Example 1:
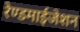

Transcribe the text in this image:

रेण्डमाईजेशन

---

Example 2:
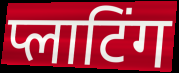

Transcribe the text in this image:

प्लाटिंग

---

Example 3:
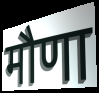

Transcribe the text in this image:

मौणा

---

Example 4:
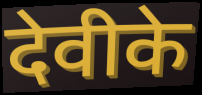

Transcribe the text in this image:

देवीके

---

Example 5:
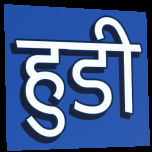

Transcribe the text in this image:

हुडी